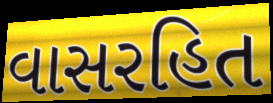
વાસરહિત